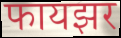
फायझर